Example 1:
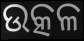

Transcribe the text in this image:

ଉତ୍କଳ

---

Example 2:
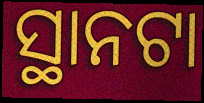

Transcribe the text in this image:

ସ୍ଥାନଟା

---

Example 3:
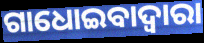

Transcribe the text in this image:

ଗାଧୋଇବାଦ୍ଵାରା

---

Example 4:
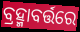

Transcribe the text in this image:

ବ୍ରହ୍ମାବର୍ତ୍ତରେ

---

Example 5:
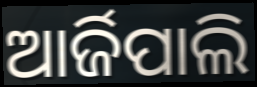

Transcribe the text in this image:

ଆର୍ଜିପାଲି